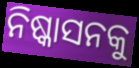
ନିଷ୍କାସନକୁ